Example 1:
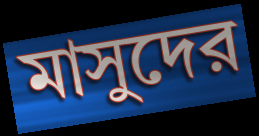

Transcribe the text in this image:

মাসুদের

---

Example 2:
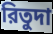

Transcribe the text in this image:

রিতুদা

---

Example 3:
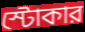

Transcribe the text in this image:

স্টোকার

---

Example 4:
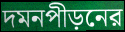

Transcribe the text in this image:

দমনপীড়নের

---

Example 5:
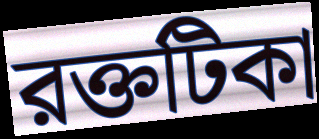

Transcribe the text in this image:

রক্তটিকা